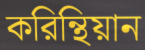
করিন্থিয়ান